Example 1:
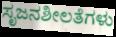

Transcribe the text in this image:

ಸೃಜನಶೀಲತೆಗಳು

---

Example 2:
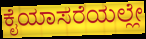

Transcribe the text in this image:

ಕೈಯಾಸರೆಯಲ್ಲೇ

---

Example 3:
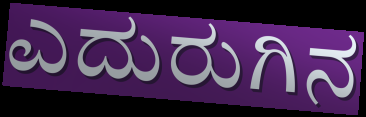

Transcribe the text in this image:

ಎದುರುಗಿನ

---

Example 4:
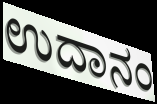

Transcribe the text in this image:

ಉದಾನಂ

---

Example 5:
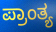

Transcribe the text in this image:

ಪ್ರಾಂತ್ಯ